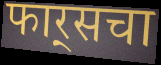
फार्सचा